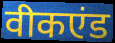
वीकएंड